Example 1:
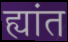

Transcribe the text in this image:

ह्यांत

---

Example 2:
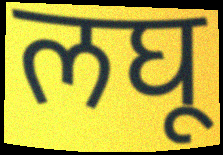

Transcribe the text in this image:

लघू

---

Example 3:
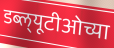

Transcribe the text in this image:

डब्ल्यूटीओच्या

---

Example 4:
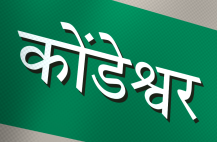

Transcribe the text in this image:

कोंडेश्वर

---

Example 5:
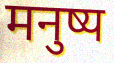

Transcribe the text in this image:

मनुष्य